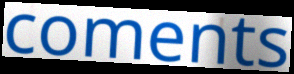
coments